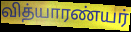
வித்யாரண்யர்